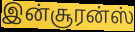
இன்சூரன்ஸ்